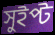
সুইপ্ট